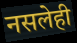
नसलेही